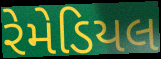
રેમેડિયલ